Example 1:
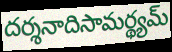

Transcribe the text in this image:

దర్శనాదిసామర్థ్యమ్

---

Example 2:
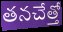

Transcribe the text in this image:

తనచేత్తో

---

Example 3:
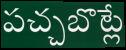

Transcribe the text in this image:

పచ్చబొట్లే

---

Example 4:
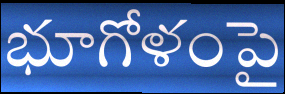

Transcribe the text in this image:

భూగోళంపై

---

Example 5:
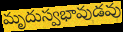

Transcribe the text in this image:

మృదుస్వభావుడవు